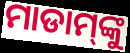
ମାଡାମ୍‌ଙ୍କୁ